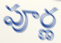
పూర్ణ